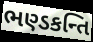
ભણ્ડકન્તિ